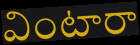
వింటారా